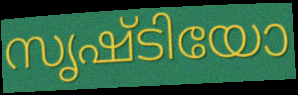
സൃഷ്ടിയോ